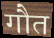
गौत